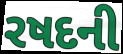
રષદની